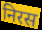
निरस